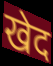
खेद